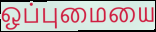
ஒப்புமையை